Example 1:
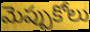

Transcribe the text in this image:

మెప్పుకోలు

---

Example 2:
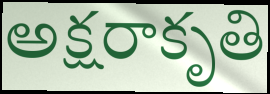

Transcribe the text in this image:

అక్షరాకృతి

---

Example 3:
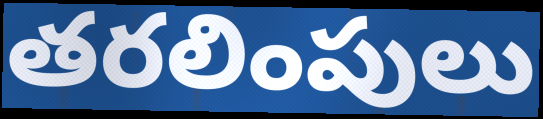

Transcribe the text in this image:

తరలింపులు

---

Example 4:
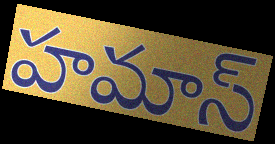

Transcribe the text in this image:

హమాస్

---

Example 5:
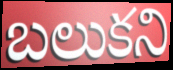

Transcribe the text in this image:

బలుకని